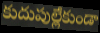
కుదుపుల్లేకుండా